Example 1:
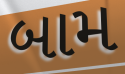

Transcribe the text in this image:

બામ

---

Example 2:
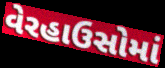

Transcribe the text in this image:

વેરહાઉસોમાં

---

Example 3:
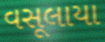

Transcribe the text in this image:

વસૂલાયા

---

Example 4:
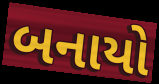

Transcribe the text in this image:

બનાયો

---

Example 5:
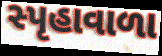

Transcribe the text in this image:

સ્પૃહાવાળા